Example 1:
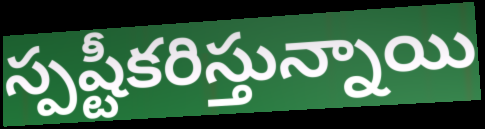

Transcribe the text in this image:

స్పష్టీకరిస్తున్నాయి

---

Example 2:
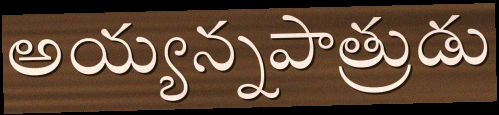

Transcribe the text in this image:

అయ్యన్నపాత్రుడు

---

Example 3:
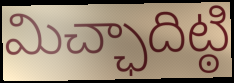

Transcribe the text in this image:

మిచ్ఛాదిట్ఠి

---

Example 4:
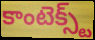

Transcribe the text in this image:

కాంటెక్స్ట్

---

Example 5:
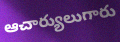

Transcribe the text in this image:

ఆచార్యులుగారు